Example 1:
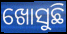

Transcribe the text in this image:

ଖୋସୁଛି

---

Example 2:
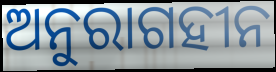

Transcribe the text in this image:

ଅନୁରାଗହୀନ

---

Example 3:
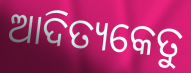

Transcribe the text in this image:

ଆଦିତ୍ୟକେତୁ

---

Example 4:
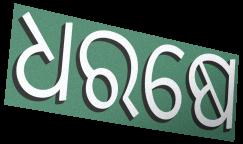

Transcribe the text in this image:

ଧରଷେ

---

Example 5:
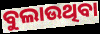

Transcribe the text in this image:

ବୁଲାଉଥିବା